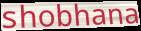
shobhana